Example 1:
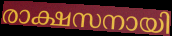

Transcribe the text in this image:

രാക്ഷസനായി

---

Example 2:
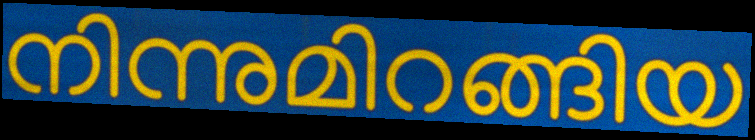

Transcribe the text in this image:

നിന്നുമിറങ്ങിയ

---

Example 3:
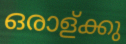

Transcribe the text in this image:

ഒരാള്ക്കു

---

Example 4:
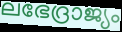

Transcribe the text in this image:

ലഭേദ്രാജ്യം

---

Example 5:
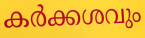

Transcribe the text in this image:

കർക്കശവും